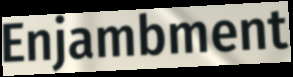
Enjambment